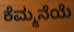
ಕೆಮ್ಮನೆಯೆ